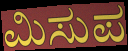
ಮಿಸುಪ